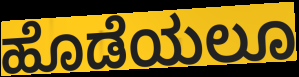
ಹೊಡೆಯಲೂ